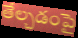
తేల్చడంపై